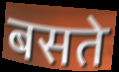
बसते